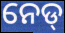
ନେଡ୍